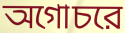
অগোচরে